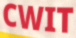
CWIT